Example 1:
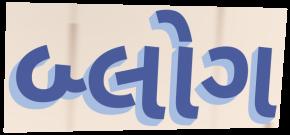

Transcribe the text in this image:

બ્લોગ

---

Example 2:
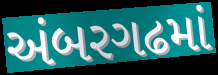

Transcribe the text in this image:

અંબરગઢમાં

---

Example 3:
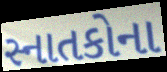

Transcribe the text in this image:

સ્નાતકોના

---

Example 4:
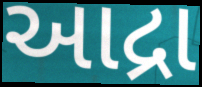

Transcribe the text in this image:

આદ્રા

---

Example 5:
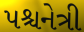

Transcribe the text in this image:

પશ્ચનેત્રી